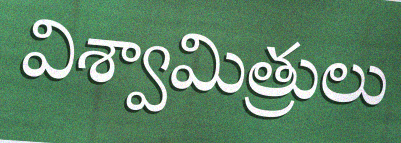
విశ్వామిత్రులు